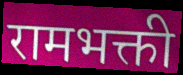
रामभक्ती